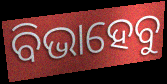
ବିଭାହେବୁ